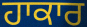
ਹਾਕਾਰ